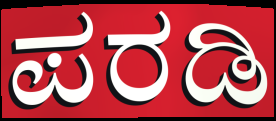
ಪರಡಿ